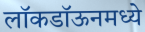
लॉकडॉऊनमध्ये